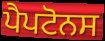
ਪੈਪਟੋਨਸ